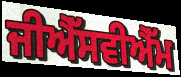
ਜੀਐੱਸਵੀਐੱਮ